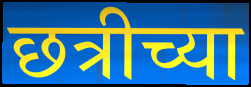
छत्रीच्या